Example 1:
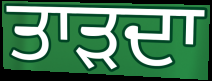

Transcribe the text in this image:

ਤਾੜਦਾ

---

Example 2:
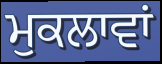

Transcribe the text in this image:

ਮੁਕਲਾਵਾਂ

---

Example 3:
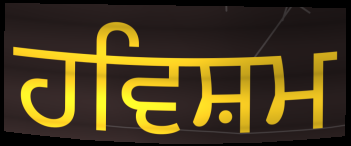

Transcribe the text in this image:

ਹਵਿਸ਼ਮ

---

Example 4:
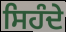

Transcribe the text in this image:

ਸਿਹੰਦੇ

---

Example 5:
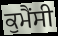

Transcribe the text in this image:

ਕੁਮੈਂਸੀ